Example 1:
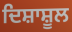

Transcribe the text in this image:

ਦਿਸ਼ਾਸ਼ੂਲ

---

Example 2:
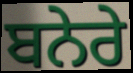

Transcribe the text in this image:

ਬਨੇਰੇ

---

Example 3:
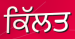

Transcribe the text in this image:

ਕਿੱਲਤ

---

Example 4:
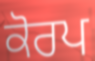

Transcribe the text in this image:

ਕੋਰਪ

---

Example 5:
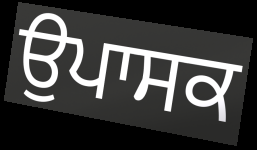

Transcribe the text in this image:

ਉਪਾਸਕ